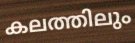
കലത്തിലും